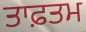
ਤਾਫ਼ਤਮ